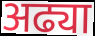
अढ्या